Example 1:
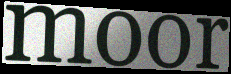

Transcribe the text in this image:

moor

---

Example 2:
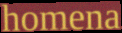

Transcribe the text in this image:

homena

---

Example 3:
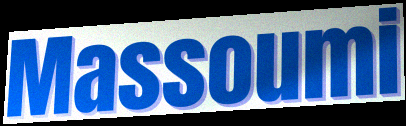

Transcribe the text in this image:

Massoumi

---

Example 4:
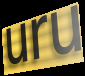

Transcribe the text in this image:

uru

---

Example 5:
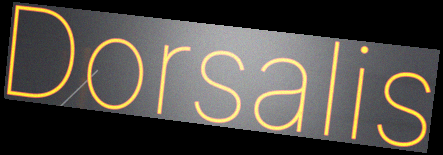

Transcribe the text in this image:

Dorsalis